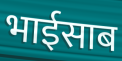
भाईसाब